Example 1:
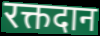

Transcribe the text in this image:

रक्तदान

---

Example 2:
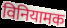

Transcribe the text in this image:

विनियामक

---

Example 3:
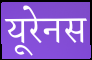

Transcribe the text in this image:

यूरेनस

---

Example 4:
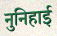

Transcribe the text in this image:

नुनिहाई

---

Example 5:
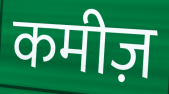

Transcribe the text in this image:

कमीज़